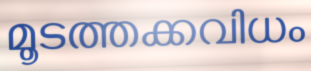
മൂടത്തക്കവിധം